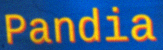
Pandia